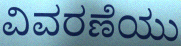
ವಿವರಣೆಯು